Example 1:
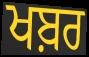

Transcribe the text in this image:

ਖਬ਼ਰ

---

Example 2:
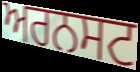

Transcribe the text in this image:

ਅਰਨਸਟ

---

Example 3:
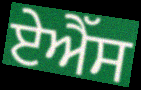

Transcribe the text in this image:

ਏਐੱਸ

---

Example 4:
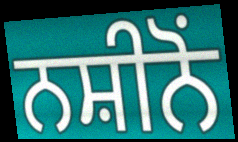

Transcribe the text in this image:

ਨਸ਼ੀਨੋਂ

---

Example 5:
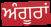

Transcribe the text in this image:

ਅੰਗੂਰਾਂ